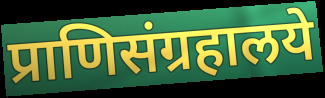
प्राणिसंग्रहालये